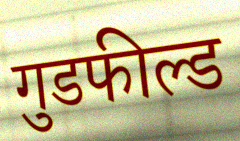
गुडफील्ड